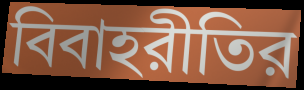
বিবাহরীতির